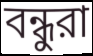
বন্ধুরা